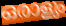
ഒരാളും